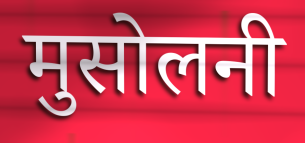
मुसोलनी